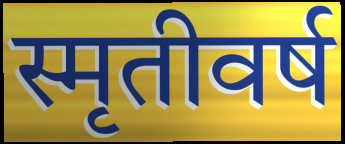
स्मृतीवर्ष